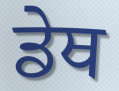
ਡੇਥ